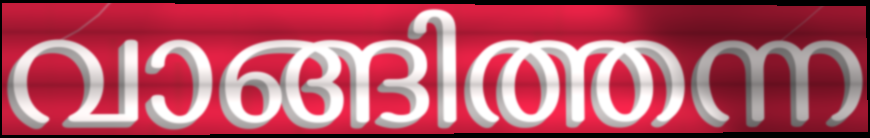
വാങ്ങിത്തന്ന